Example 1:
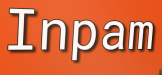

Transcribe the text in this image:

Inpam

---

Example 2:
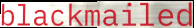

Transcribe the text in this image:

blackmailed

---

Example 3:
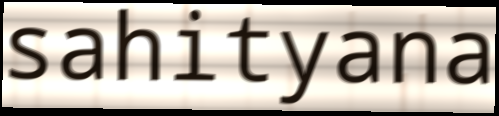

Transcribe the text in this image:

sahityana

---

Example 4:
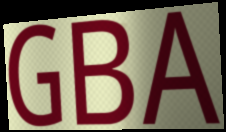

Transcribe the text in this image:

GBA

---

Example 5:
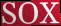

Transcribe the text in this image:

SOX